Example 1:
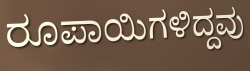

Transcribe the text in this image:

ರೂಪಾಯಿಗಳಿದ್ದವು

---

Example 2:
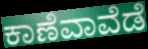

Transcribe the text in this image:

ಕಾಣೆವಾವೆಡೆ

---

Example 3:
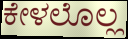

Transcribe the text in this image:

ಕೇಳಲೊಲ್ಲ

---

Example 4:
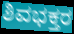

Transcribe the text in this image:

ಶಿವಭಕ್ತರ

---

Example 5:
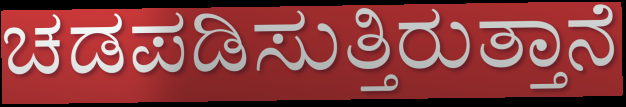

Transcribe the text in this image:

ಚಡಪಡಿಸುತ್ತಿರುತ್ತಾನೆ